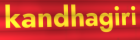
kandhagiri